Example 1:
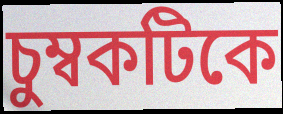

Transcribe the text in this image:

চুম্বকটিকে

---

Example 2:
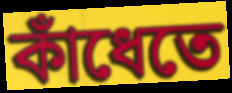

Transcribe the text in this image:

কাঁধেতে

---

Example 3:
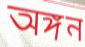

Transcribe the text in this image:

অঙ্গন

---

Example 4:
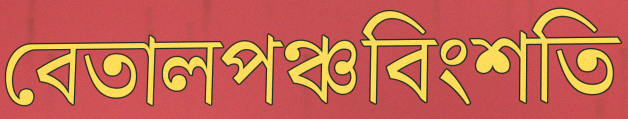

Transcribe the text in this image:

বেতালপঞ্চবিংশতি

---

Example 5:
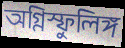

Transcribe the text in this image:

অগ্নিস্ফুলিঙ্গ